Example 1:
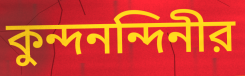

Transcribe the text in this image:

কুন্দনন্দিনীর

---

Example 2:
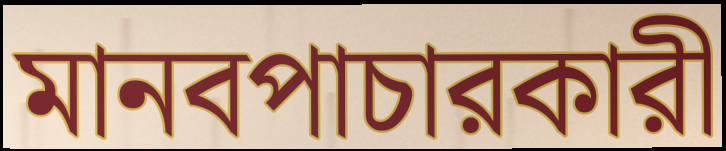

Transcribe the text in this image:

মানবপাচারকারী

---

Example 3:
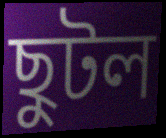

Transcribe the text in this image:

ছুটল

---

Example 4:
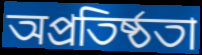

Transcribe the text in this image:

অপ্রতিষ্ঠতা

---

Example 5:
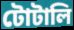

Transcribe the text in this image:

টোটালি